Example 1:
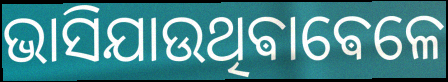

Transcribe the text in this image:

ଭାସିଯାଉଥିଵାଵେଳେ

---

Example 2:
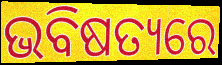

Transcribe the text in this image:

ଭବିଷତ୍ୟରେ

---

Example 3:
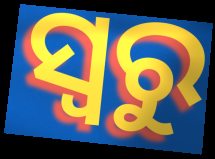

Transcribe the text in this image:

ସ୍ୱରୁ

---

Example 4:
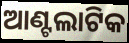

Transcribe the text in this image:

ଆଣ୍ଟଲାଟିକ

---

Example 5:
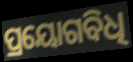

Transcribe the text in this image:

ପ୍ରୟୋଗବିଧି